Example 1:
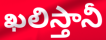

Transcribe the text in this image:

ఖలిస్తానీ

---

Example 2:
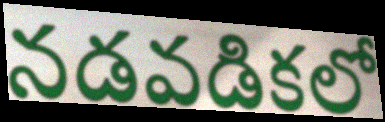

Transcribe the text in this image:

నడవడికలో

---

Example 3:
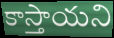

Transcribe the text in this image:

కాస్తాయని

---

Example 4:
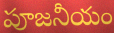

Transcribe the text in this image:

పూజనీయం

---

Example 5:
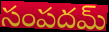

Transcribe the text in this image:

సంపదమ్